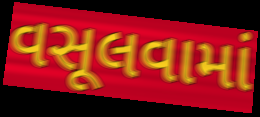
વસૂલવામાં